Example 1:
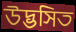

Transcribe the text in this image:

উদ্ভসিত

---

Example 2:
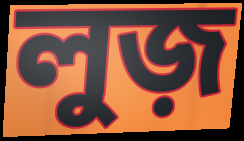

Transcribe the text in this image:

লুজ়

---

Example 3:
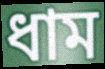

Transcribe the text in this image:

ধাম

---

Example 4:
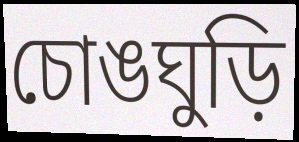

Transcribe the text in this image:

চোঙঘুড়ি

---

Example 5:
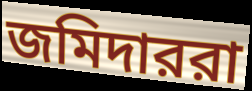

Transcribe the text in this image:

জমিদাররা